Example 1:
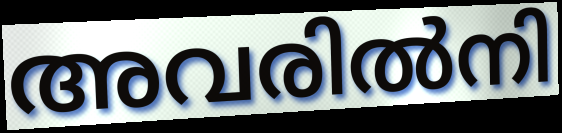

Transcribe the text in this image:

അവരിൽനി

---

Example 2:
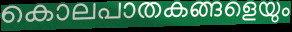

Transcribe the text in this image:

കൊലപാതകങ്ങളെയും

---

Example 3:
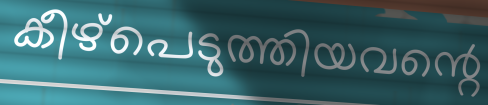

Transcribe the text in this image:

കീഴ്പെടുത്തിയവന്റെ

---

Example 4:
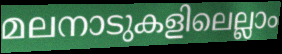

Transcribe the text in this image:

മലനാടുകളിലെല്ലാം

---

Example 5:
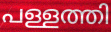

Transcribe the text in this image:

പള്ളത്തി